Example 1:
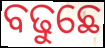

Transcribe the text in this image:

ବଢୁଛେ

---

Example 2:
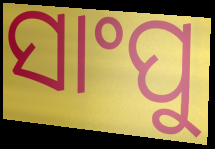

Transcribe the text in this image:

ସାଂପୁ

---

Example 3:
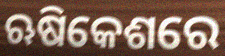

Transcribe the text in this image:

ଋଷିକେଶରେ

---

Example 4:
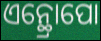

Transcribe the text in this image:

ଏନ୍ଥ୍ରୋପୋ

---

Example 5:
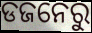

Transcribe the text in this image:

ଡଜନେରୁ